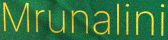
Mrunalini